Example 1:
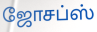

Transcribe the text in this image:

ஜோசப்ஸ்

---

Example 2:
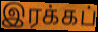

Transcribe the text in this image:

இரக்கப்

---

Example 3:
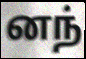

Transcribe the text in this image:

னந்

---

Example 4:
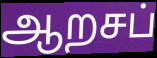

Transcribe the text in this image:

ஆறசப்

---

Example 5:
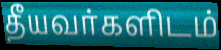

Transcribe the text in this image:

தீயவர்களிடம்